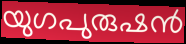
യുഗപുരുഷൻ